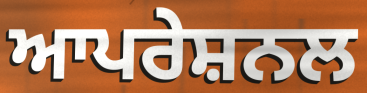
ਆਪਰੇਸ਼ਨਲ